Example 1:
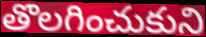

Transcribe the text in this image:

తొలగించుకుని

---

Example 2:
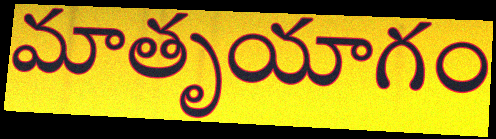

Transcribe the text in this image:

మాతృయాగం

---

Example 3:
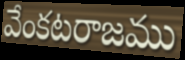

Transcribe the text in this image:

వేంకటరాజము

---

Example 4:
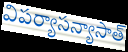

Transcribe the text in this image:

విపర్యాసన్యాసాత్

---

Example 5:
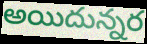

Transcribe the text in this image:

అయిదున్నర